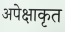
अपेक्षाकृत